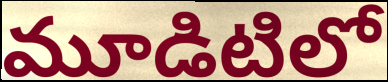
మూడిటిలో